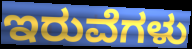
ಇರುವೆಗಳು